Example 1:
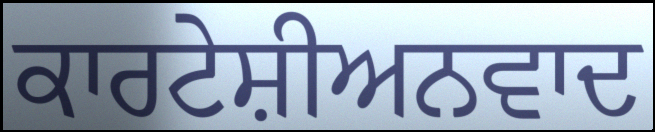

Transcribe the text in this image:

ਕਾਰਟੇਸ਼ੀਅਨਵਾਦ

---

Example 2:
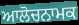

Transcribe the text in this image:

ਆਲੋਚਨਾਮਕ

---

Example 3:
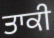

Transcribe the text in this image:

ਤਾਕੀ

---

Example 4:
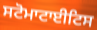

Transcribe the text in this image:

ਸਟੋਮਾਟਾਈਟਿਸ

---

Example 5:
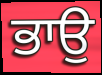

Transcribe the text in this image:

ਭਾਉ